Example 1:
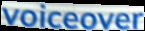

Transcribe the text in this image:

voiceover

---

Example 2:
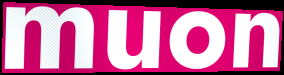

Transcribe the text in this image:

muon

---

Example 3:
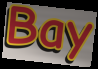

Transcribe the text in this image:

Bay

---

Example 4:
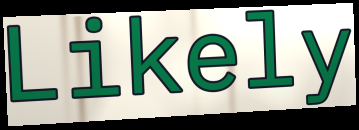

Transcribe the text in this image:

Likely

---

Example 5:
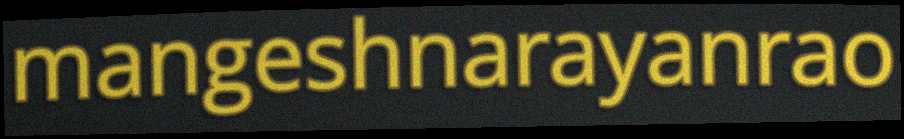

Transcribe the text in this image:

mangeshnarayanrao